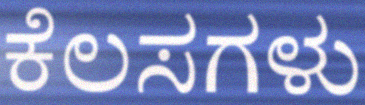
ಕೆಲಸಗಳು